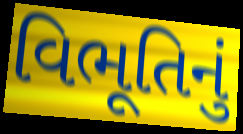
વિભૂતિનું